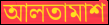
আলতামাশ